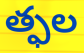
త్ఫల